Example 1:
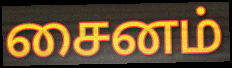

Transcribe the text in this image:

சைனம்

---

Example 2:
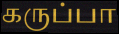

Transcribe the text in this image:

கருப்பா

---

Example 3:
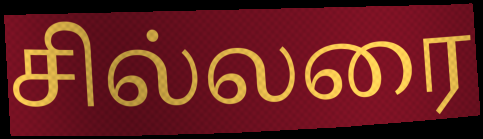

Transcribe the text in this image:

சில்லரை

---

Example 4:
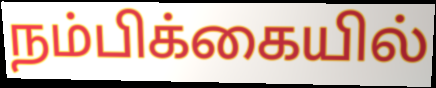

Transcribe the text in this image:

நம்பிக்கையில்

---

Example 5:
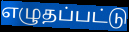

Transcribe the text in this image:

எழுதப்பட்டு